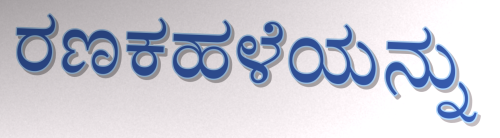
ರಣಕಹಳೆಯನ್ನು